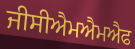
ਜੀਸੀਐਮਐਮਐਫ